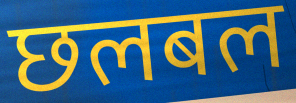
छलबल